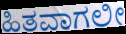
ಹಿತವಾಗಲೀ